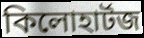
কিলোহার্টজ